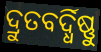
ଦ୍ରୁତବର୍ଦ୍ଧିଷ୍ଣୁ